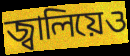
জ্বালিয়েও